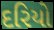
દરિયો